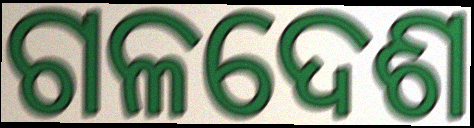
ଗଳଦେଶ